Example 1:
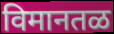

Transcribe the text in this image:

विमानतळ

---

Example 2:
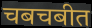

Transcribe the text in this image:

चबचबीत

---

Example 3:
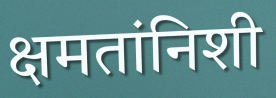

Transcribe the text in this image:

क्षमतांनिशी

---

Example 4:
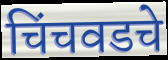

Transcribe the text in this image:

चिंचवडचे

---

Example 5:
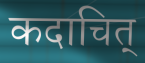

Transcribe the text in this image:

कदाचित्